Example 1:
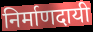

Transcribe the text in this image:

निर्माणदायी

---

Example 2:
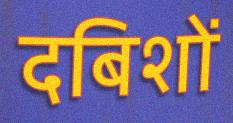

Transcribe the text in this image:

दबिशों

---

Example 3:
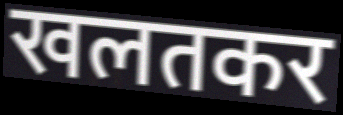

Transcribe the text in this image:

खलतकर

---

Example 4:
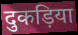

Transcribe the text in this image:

दुकड़िया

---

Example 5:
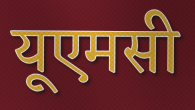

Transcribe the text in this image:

यूएमसी